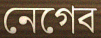
নেগেব